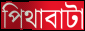
পিথাবাটা